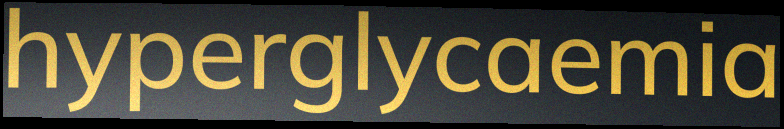
hyperglycaemia